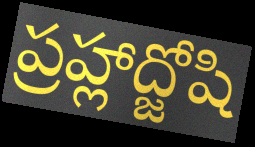
ప్రహ్లాద్జోషి